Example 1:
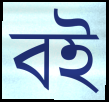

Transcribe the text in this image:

বই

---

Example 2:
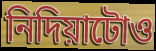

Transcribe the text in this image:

নিদিয়াটোও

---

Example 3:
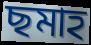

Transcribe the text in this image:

ছমাহ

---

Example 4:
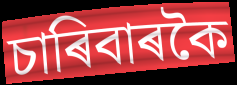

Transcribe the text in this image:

চাৰিবাৰকৈ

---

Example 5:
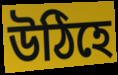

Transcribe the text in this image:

উঠিহে